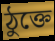
ঠুক্তে